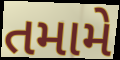
તમામે